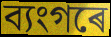
ব্যংগৰে